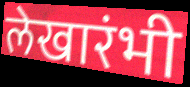
लेखारंभी